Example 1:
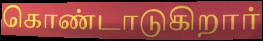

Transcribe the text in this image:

கொண்டாடுகிறார்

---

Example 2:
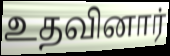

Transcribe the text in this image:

உதவினார்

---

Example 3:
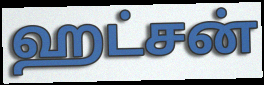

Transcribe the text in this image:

ஹட்சன்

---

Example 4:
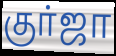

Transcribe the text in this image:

குர்ஜா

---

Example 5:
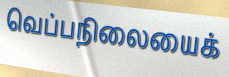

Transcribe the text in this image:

வெப்பநிலையைக்